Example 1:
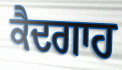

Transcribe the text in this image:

ਕੈਦਗਾਹ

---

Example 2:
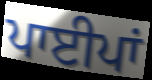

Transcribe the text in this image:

ਪਾਈਪਾਂ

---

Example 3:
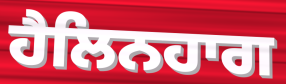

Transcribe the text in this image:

ਹੈਲਿਨਹਾਗ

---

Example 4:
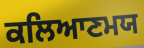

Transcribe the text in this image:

ਕਲਿਆਣਮਯ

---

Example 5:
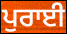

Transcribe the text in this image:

ਪੁਰਾਈ